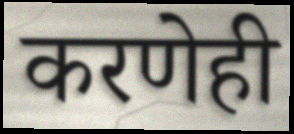
करणेही